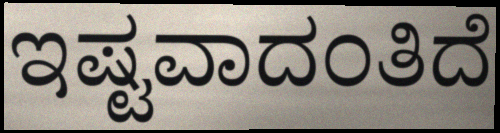
ಇಷ್ಟವಾದಂತಿದೆ